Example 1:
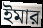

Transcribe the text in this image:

ইমার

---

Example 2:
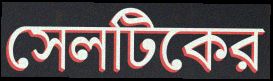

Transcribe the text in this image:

সেলটিকের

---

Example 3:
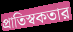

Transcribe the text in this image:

প্রাতিস্বকতার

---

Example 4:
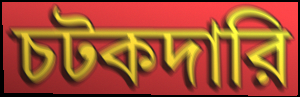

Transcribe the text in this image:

চটকদারি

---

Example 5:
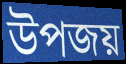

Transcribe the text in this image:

উপজয়